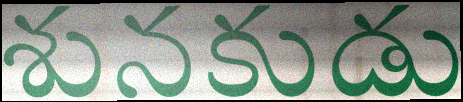
శునకుడు